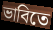
ভাবিতে